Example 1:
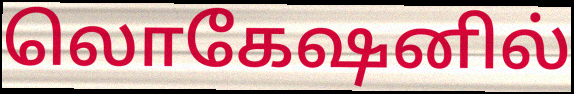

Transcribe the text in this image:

லொகேஷனில்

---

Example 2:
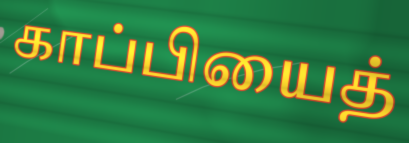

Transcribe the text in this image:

காப்பியைத்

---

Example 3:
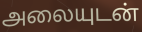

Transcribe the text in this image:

அலையுடன்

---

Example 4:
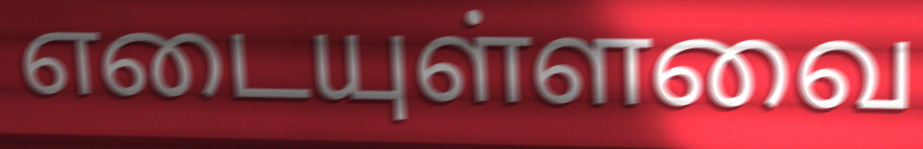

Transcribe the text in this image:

எடையுள்ளவை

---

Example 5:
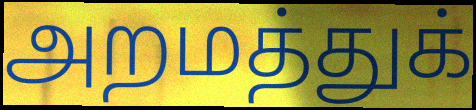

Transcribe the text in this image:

அறமத்துக்